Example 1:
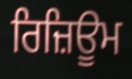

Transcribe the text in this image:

ਰਿਜ਼ਿਊਮ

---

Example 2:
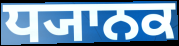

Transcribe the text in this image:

ਧ੍ਯਾਨਕ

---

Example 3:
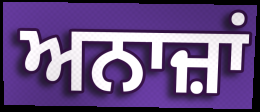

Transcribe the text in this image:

ਅਨਾਜ਼ਾਂ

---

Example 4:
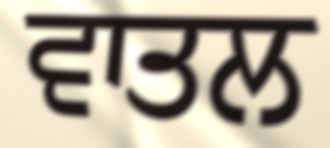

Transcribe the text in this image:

ਵਾਤਲ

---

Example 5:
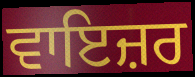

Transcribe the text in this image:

ਵਾਇਜ਼ਰ